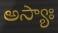
అస్యాః